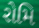
રોમિ